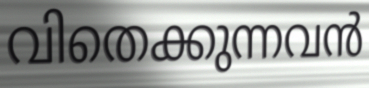
വിതെക്കുന്നവൻ